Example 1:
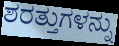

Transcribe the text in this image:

ಶರತ್ತುಗಳನ್ನು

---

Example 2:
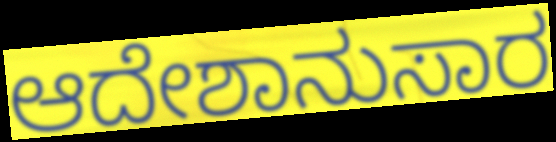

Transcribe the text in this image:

ಆದೇಶಾನುಸಾರ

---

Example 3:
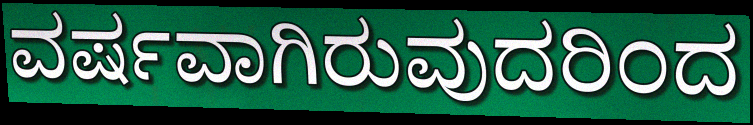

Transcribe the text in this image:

ವರ್ಷವಾಗಿರುವುದರಿಂದ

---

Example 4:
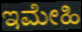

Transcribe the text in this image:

ಇಮೇಹಿ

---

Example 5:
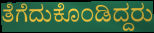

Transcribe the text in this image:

ತೆಗೆದುಕೊಂಡಿದ್ದರು